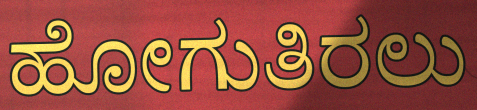
ಹೋಗುತಿರಲು